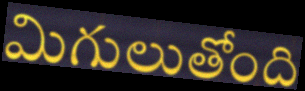
మిగులుతోంది